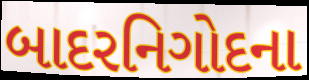
બાદરનિગોદના